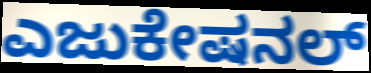
ಎಜುಕೇಷನಲ್